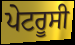
ਪੇਟਰੂਸੀ